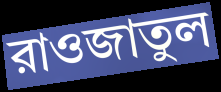
রাওজাতুল